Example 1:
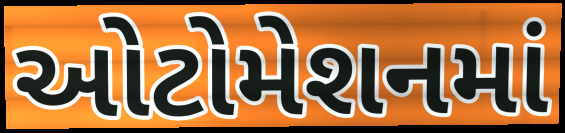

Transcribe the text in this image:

ઓટોમેશનમાં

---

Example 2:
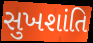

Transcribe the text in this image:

સુખશાંતિ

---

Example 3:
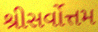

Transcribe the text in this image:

શ્રીસર્વોત્તમ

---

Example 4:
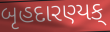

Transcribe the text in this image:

બૃહદારણ્યક્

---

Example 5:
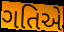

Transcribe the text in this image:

ગતિએ